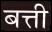
बत्ती